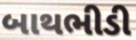
બાથભીડી